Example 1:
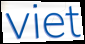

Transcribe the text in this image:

viet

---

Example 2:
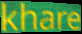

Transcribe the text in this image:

khare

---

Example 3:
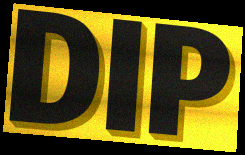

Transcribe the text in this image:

DIP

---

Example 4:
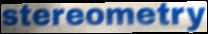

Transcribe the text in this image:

stereometry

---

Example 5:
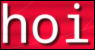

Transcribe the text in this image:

hoi